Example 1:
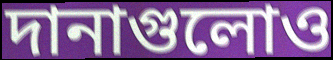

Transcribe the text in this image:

দানাগুলোও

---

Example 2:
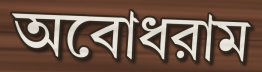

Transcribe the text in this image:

অবোধরাম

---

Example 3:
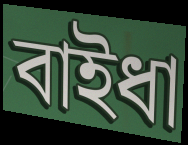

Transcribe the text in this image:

বাইধা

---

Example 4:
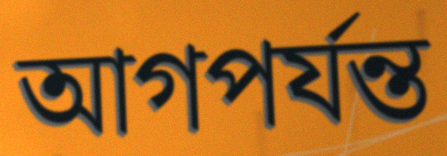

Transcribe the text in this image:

আগপর্যন্ত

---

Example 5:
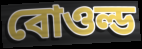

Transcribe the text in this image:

বোওল্ড